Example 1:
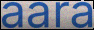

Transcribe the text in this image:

aara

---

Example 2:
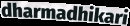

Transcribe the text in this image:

dharmadhikari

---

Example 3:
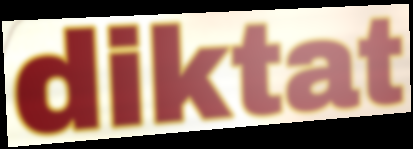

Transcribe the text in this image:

diktat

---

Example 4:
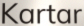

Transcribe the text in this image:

Kartar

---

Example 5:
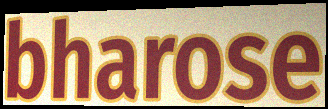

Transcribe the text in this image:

bharose